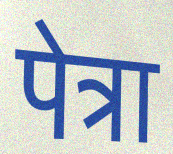
पेत्रा